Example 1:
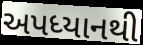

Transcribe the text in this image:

અપધ્યાનથી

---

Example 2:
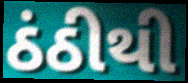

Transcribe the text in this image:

ઠંઠીથી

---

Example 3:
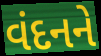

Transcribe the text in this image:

વંદનને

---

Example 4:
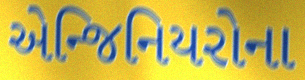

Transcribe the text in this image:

એન્જિનિયરોના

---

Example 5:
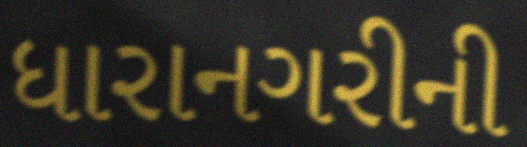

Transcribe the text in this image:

ધારાનગરીની